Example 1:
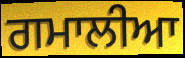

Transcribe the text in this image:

ਗਮਾਲੀਆ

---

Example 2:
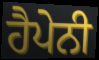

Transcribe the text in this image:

ਹੈਪੇਨੀ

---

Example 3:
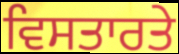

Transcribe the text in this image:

ਵਿਸਤਾਰਤੇ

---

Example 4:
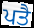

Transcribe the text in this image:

ਪਤੈ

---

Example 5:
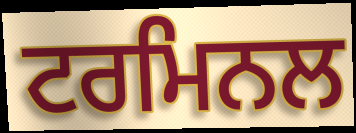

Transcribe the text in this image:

ਟਰਮਿਨਲ